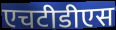
एचटीडीएस